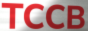
TCCB